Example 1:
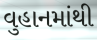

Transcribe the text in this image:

વુહાનમાંથી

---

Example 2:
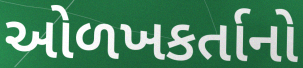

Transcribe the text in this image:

ઓળખકર્તાનો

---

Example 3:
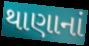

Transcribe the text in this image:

થાણાનાં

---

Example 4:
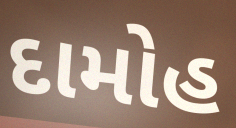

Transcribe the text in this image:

દામોહ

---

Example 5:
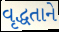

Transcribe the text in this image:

વૃદ્ધતાને